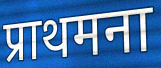
प्राथमना